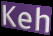
Keh